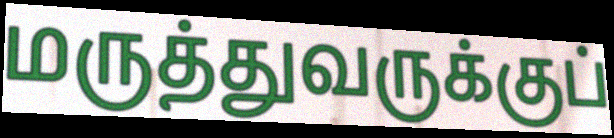
மருத்துவருக்குப்